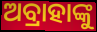
ଅବ୍ରାହାଙ୍କୁ